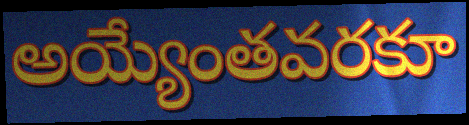
అయ్యేంతవరకూ